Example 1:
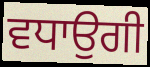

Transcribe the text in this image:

ਵਧਾਉਗੀ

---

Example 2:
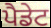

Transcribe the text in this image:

ਪੈਡੇਟ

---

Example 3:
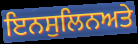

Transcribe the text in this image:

ਇਨਸੁਲਿਨਅਤੇ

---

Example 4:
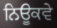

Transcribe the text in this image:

ਨਿਊਕਵੇ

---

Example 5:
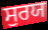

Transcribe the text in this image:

ਸੁਰਯ